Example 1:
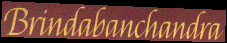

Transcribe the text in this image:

Brindabanchandra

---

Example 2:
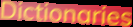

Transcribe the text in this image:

Dictionaries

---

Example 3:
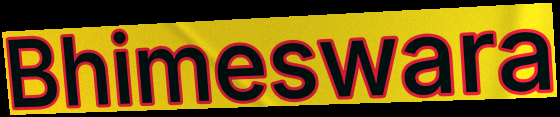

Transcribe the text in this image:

Bhimeswara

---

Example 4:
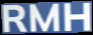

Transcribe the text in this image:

RMH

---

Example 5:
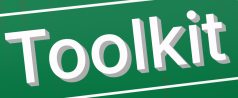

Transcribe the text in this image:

Toolkit